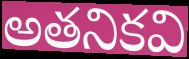
అతనికవి